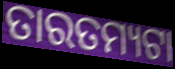
ତାରତମ୍ୟଟା